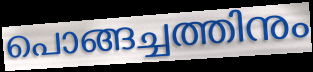
പൊങ്ങച്ചത്തിനും